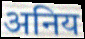
अनिय